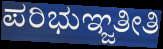
ಪರಿಭುಞ್ಜತೀತಿ